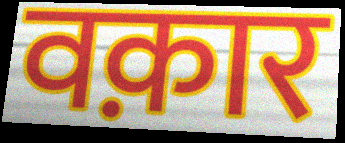
वक़ार